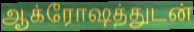
ஆக்ரோஷத்துடன்